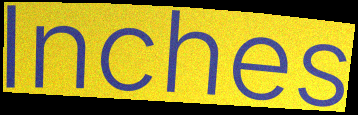
Inches